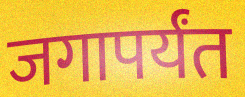
जगापर्यंत